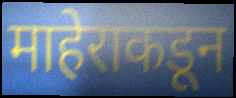
माहेराकडून